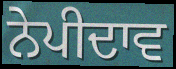
ਨੇਪੀਦਾਵ